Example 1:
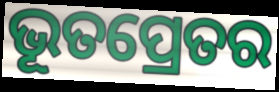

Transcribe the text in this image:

ଭୂତପ୍ରେତର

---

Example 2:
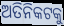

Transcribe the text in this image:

ଅତିନିକଟକୁ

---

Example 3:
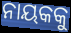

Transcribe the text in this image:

ନାୟକକୁ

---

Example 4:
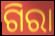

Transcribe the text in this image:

ଗିରା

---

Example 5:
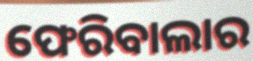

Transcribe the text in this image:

ଫେରିବାଲାର